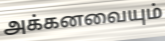
அக்கனவையும்